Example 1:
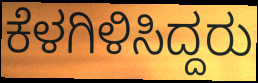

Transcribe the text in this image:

ಕೆಳಗಿಳಿಸಿದ್ದರು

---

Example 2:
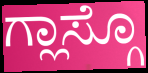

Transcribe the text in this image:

ಗ್ಲಾಸ್ಗೊ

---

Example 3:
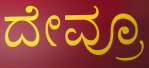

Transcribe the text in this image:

ದೇವ್ರೂ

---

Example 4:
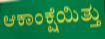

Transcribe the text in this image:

ಆಕಾಂಕ್ಷೆಯಿತ್ತು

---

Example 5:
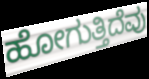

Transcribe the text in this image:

ಹೋಗುತ್ತಿದೆವು